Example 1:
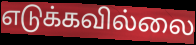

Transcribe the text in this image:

எடுக்கவில்லை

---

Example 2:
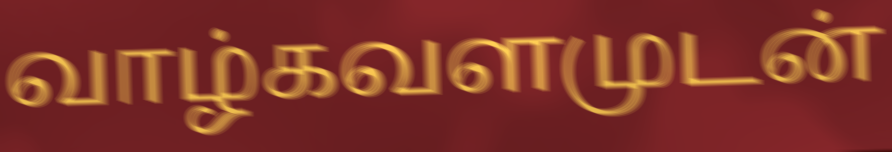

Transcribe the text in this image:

வாழ்கவளமுடன்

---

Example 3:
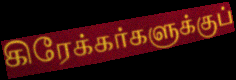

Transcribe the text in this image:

கிரேக்கர்களுக்குப்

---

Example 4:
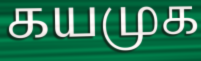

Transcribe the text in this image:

கயமுக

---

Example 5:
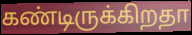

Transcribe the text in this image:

கண்டிருக்கிறதா